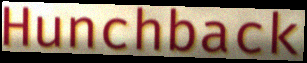
Hunchback